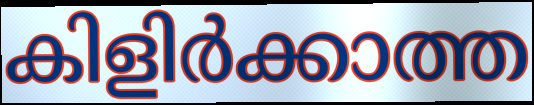
കിളിർക്കാത്ത